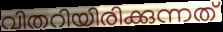
വിതറിയിരിക്കുന്നത്